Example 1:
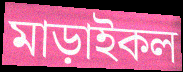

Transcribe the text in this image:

মাড়াইকল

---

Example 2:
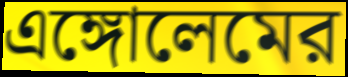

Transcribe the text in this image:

এঙ্গোলেমের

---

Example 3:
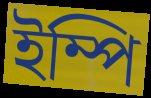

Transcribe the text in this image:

ইম্পি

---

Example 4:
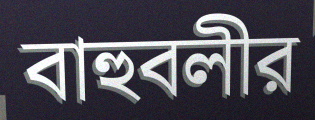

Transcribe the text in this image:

বাহুবলীর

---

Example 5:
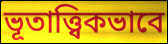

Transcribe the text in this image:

ভূতাত্ত্বিকভাবে